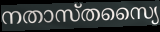
നതാസ്തസ്യൈ